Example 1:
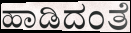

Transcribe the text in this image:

ಹಾಡಿದಂತೆ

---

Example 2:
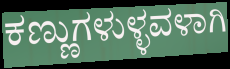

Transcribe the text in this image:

ಕಣ್ಣುಗಳುಳ್ಳವಳಾಗಿ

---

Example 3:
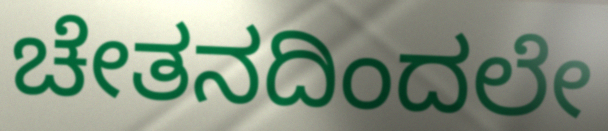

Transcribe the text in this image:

ಚೇತನದಿಂದಲೇ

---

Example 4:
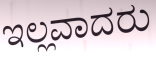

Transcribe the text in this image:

ಇಲ್ಲವಾದರು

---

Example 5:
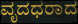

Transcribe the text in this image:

ವೃದಧರಾದ